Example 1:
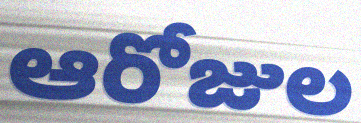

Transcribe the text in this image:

ఆరోజుల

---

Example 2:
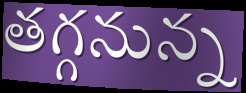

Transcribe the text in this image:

తగ్గనున్న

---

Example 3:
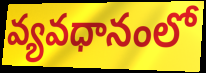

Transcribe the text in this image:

వ్యవధానంలో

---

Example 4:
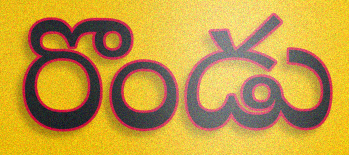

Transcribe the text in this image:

రొండు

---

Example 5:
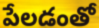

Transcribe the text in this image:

పేలడంతో